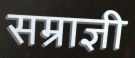
सम्राज्ञी